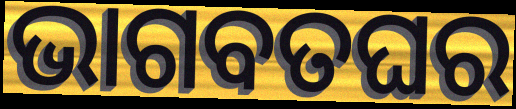
ଭାଗବତଘର